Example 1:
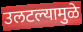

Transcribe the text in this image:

उलटल्यामुळे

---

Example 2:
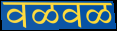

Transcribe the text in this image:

वळवळ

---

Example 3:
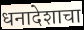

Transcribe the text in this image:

धनादेशाचा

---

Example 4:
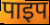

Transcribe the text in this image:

पाइप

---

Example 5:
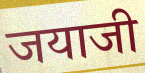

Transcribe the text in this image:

जयाजी